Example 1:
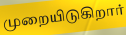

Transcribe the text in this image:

முறையிடுகிறார்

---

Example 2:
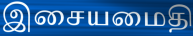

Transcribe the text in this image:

இசையமைதி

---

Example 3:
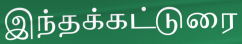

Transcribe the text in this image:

இந்தக்கட்டுரை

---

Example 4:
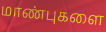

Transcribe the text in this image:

மாண்புகளை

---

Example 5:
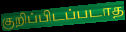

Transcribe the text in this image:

குறிப்பிடப்படாத